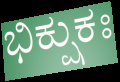
ಭಿಕ್ಷುಕಃ